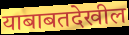
याबाबतदेखील